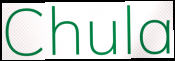
Chula